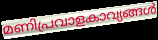
മണിപ്രവാളകാവ്യങ്ങൾ